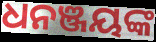
ଧନଞ୍ଜୟଙ୍କ